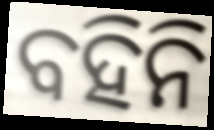
ବହିନି